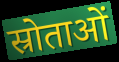
स्रोताओं